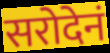
सरोदेनं